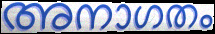
അനാഗതം